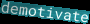
demotivate